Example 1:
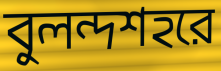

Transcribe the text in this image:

বুলন্দশহরে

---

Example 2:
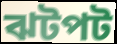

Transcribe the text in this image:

ঝটপট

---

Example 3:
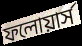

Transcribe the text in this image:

ফলোয়ার্স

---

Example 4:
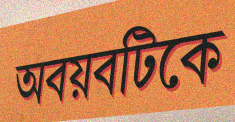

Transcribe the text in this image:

অবয়বটিকে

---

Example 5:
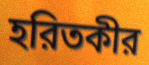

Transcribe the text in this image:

হরিতকীর